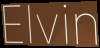
Elvin